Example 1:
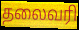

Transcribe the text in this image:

தலைவரி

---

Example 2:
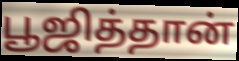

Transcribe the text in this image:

பூஜித்தான்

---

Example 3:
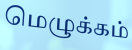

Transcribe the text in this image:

மெழுக்கம்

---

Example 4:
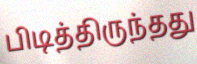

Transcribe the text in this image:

பிடித்திருந்தது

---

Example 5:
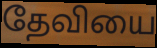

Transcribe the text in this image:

தேவியை